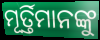
ମୂର୍ତ୍ତିମାନଙ୍କୁ